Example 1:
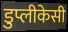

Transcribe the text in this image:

डुप्लीकेसी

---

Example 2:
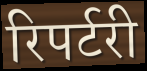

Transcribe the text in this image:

रिपर्टरी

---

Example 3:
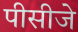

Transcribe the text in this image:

पीसीजे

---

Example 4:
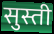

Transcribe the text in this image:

सुस्ती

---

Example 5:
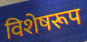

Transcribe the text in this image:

विशेषरूप